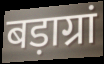
बड़ाग्रां